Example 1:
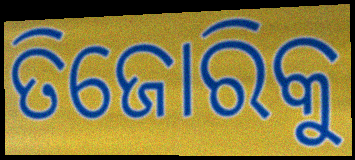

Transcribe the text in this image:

ତିଜୋରିକୁ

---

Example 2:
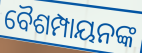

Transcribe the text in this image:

ବୈଶମ୍ପାୟନଙ୍କ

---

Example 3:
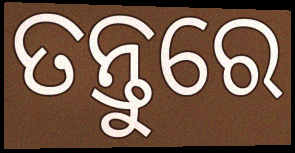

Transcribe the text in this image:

ତନ୍ତୁରେ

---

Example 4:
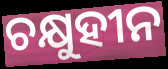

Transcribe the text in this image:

ଚକ୍ଷୁହୀନ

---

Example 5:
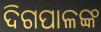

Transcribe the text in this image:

ଦିଗପାଳଙ୍କ